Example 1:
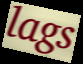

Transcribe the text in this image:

lags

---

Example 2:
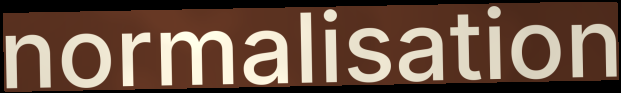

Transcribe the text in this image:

normalisation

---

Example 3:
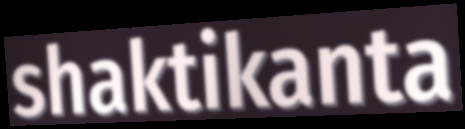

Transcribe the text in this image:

shaktikanta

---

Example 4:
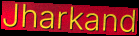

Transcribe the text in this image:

Jharkand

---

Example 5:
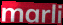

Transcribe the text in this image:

marli